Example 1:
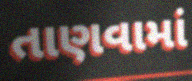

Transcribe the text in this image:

તાણવામાં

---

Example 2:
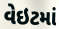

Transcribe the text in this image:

વેઇટમાં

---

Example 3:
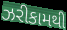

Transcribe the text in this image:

ઝરીકામથી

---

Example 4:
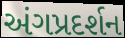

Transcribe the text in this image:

અંગપ્રદર્શન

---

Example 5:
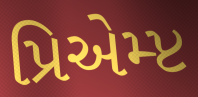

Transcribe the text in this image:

પ્રિએમ્પ્ટ